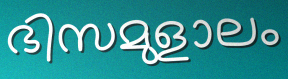
ഭിസമുളാലം